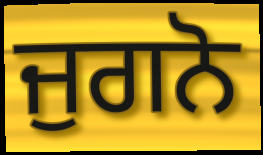
ਜੁਗਨੋ